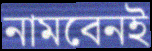
নামবেনই